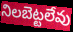
నిలబెట్టలేవు